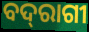
ବଦ୍‌ରାଗୀ